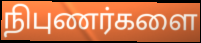
நிபுணர்களை